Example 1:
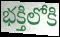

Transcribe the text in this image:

భక్తిలోకి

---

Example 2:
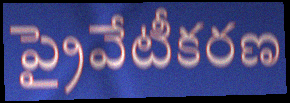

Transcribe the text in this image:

ప్రైవేటీకరణ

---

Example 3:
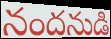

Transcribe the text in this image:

నందనుడి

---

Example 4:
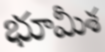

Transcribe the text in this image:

భూమీశ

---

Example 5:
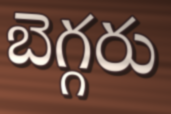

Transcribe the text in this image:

బెగ్గరు